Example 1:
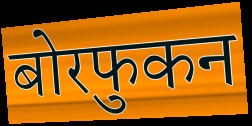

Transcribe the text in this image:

बोरफुकन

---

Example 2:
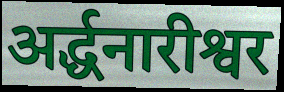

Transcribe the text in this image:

अर्द्धनारीश्वर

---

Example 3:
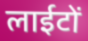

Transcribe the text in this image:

लाईटों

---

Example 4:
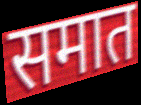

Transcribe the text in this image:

समात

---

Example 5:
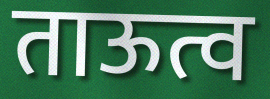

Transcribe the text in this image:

ताऊत्व